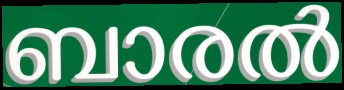
ബാരൽ